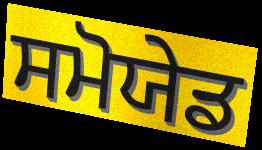
ਸਮੋਯੇਡ